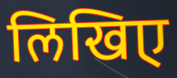
लिखिए